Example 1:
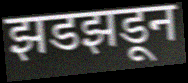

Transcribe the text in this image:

झडझडून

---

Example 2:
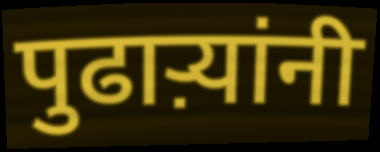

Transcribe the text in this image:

पुढाऱ्‍यांनी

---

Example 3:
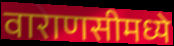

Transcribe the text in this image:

वाराणसीमध्ये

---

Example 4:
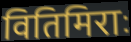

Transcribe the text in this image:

वितिमिराः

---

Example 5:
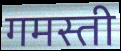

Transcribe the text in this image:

गमस्ती